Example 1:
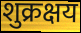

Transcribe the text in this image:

शुक्रक्षय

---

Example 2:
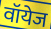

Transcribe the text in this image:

वॉयेज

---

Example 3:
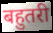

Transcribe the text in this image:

बहुतरी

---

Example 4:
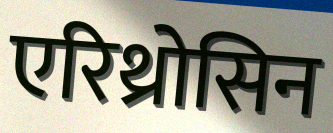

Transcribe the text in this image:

एरिथ्रोसिन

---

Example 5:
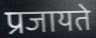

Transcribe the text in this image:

प्रजायते